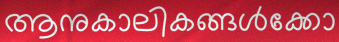
ആനുകാലികങ്ങൾക്കോ